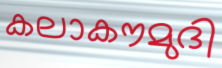
കലാകൗമുദി